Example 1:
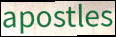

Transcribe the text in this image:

apostles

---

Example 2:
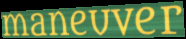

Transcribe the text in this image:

maneuver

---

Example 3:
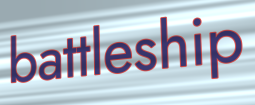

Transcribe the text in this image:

battleship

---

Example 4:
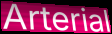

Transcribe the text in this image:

Arterial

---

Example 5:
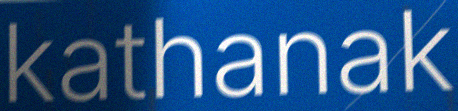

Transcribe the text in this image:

kathanak